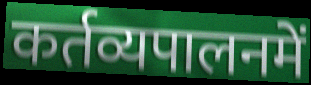
कर्तव्यपालनमें